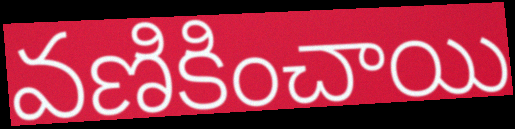
వణికించాయి